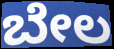
ಬೇಲ